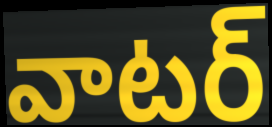
వాటర్